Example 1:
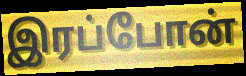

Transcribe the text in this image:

இரப்போன்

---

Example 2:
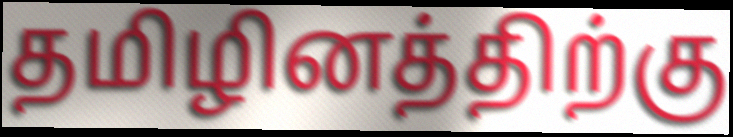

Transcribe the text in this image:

தமிழினத்திற்கு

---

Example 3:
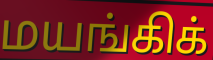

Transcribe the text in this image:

மயங்கிக்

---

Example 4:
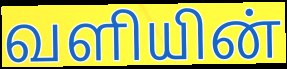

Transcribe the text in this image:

வளியின்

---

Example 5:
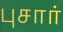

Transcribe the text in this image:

புசார்